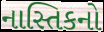
નાસ્તિકનો